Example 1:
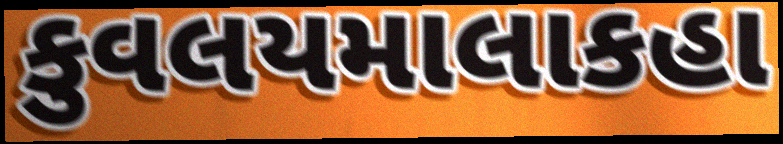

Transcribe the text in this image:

કુવલયમાલાકહા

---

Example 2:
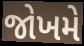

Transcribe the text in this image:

જોખમે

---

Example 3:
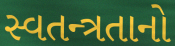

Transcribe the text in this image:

સ્વતન્ત્રતાનો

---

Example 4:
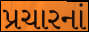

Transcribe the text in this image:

પ્રચારનાં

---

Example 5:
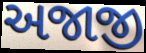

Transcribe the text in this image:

અજાજી